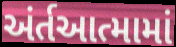
અંર્તઆત્મામાં